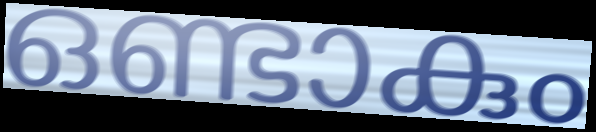
ഒണ്ടാകും